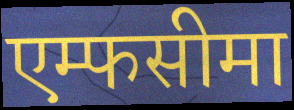
एम्फसीमा